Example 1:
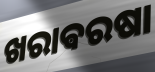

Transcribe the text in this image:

ଖରାଵରଷା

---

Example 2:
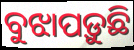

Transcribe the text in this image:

ବୁଝାପଡ଼ୁଛି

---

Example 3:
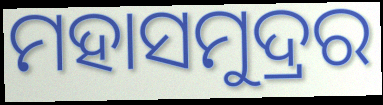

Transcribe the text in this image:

ମହାସମୁଦ୍ରର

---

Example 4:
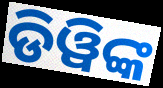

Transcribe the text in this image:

ଡିୱିଙ୍କ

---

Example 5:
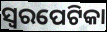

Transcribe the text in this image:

ସ୍ୱରପେଟିକା